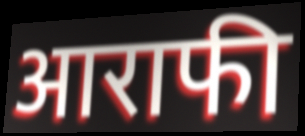
आराफी